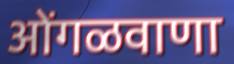
ओंगळवाणा